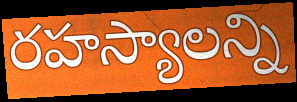
రహస్యాలన్ని